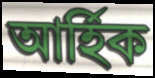
আৰ্হিক